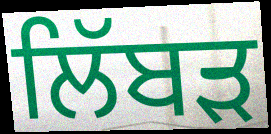
ਲਿੱਬੜ